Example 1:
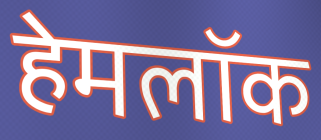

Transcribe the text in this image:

हेमलॉक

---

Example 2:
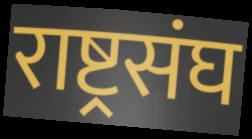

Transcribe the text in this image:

राष्ट्रसंघ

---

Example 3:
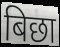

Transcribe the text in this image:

बिछा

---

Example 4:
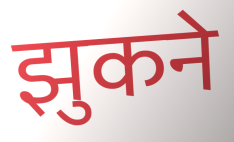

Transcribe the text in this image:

झुकने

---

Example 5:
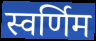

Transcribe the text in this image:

स्वर्णिम